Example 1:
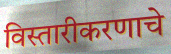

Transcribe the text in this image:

विस्तारीकरणाचे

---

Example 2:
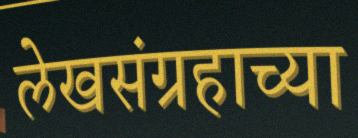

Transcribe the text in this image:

लेखसंग्रहाच्या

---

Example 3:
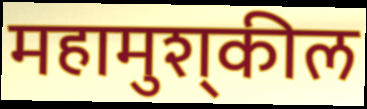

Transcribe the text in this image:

महामुश्कील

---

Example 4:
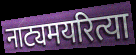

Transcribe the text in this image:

नाट्यमयरित्या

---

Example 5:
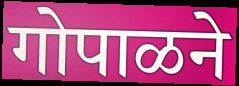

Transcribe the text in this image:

गोपाळने